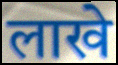
लाखे